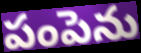
పంపెను